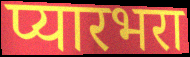
प्यारभरा